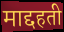
माद्दहती